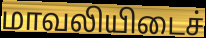
மாவலியிடைச்